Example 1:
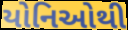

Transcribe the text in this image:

યોનિઓથી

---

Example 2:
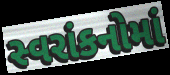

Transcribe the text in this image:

સ્વરાંકનોમાં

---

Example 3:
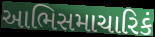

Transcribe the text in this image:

આભિસમાચારિકં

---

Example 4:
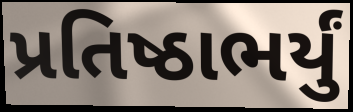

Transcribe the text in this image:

પ્રતિષ્ઠાભર્યું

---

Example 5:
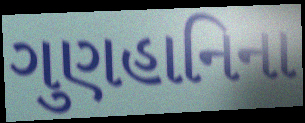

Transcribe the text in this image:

ગુણહાનિના